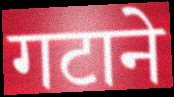
गटाने